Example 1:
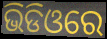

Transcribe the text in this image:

ଭିଡିଓରେ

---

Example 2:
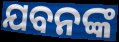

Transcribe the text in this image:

ଯବନଙ୍କ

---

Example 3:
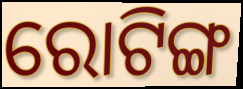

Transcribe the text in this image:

ରୋଟିଙ୍ଗ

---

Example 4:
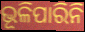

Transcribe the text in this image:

ଭୂଳିପାରିନି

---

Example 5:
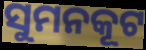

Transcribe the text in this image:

ସୁମନକୂଟ